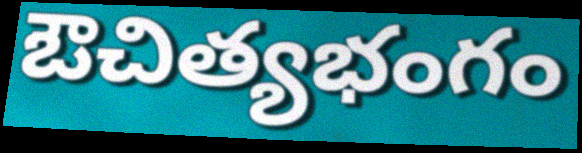
ఔచిత్యభంగం